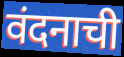
वंदनाची